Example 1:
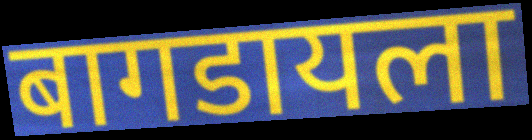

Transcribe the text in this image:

बागडायला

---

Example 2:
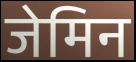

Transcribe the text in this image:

जेमिन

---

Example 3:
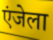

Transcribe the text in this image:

एंजेला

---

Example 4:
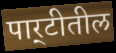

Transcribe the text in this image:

पार्टीतील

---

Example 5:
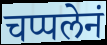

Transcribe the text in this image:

चप्पलेनं